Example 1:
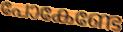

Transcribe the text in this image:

പോകേണ്ടേ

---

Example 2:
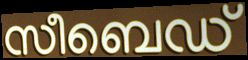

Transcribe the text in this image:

സീബെഡ്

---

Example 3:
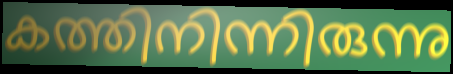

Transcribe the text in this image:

കത്തിനിന്നിരുന്നു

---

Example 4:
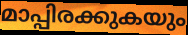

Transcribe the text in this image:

മാപ്പിരക്കുകയും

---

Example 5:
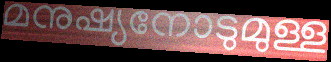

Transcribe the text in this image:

മനുഷ്യനോടുമുള്ള